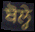
ਬੋਲ੍ਹੇ